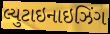
લ્યુટાઇનાઇઝિંગ